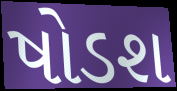
ષોડશ